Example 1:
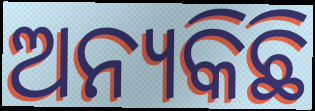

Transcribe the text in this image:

ଅନ୍ୟକିଛି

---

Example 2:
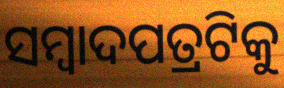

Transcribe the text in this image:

ସମ୍ବାଦପତ୍ରଟିକୁ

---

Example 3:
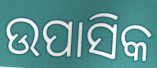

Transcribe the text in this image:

ଉପାସିକ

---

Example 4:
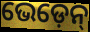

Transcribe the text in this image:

ଭେଡ଼େନ୍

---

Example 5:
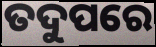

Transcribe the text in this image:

ତଦୁପରେ